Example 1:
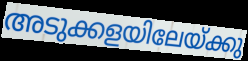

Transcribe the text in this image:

അടുക്കളയിലേയ്ക്കു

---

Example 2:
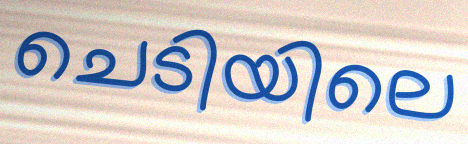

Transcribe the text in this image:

ചെടിയിലെ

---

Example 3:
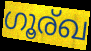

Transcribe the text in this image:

ഗൂര്ഖ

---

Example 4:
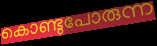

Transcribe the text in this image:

കൊണ്ടുപോരുന്ന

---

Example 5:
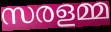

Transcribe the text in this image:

സരളമ്മ